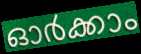
ഓർക്കാം